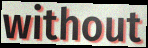
without